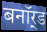
बनॉर्ड